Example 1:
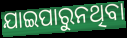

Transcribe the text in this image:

ଯାଇପାରୁନଥିବା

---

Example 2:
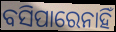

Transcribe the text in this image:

ବସିପାରେନାହିଁ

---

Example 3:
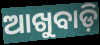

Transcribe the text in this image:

ଆଖୁବାଡ଼ି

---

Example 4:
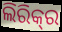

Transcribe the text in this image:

ଲିରିକ୍‍ର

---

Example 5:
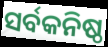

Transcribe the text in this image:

ସର୍ବକନିଷ୍ଠ